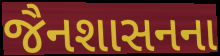
જૈનશાસનના